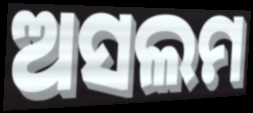
ଅସଲମ